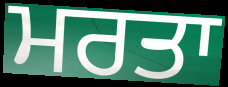
ਮਰਤਾ